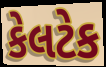
કેલટેક